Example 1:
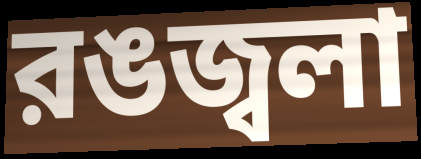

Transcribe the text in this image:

রঙজ্বলা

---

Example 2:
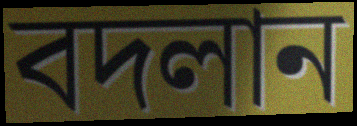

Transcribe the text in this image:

বদলান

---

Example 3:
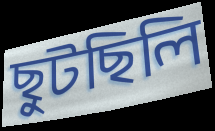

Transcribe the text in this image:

ছুটছিলি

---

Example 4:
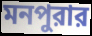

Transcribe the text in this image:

মনপুরার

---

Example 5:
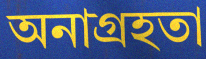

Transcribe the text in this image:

অনাগ্রহতা